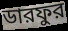
ডারফুর